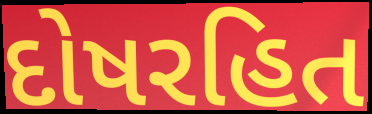
દોષરહિત